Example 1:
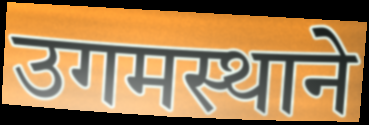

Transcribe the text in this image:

उगमस्थाने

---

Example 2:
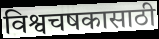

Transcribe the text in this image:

विश्वचषकासाठी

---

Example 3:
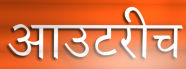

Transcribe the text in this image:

आउटरीच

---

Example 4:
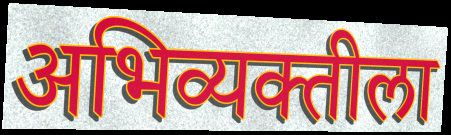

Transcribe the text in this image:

अभिव्यक्तीला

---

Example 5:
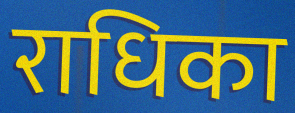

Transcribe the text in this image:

राधिका